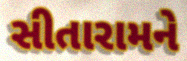
સીતારામને